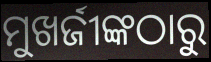
ମୁଖର୍ଜୀଙ୍କଠାରୁ